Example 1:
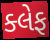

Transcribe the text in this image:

ક્લેફ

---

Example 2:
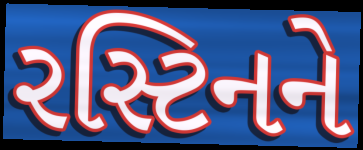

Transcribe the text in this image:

રસ્ટિનને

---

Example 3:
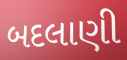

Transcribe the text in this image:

બદલાણી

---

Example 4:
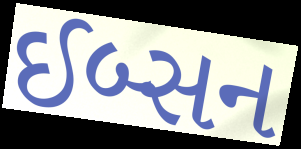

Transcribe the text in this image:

ઈબ્સન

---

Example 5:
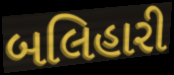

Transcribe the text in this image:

બલિહારી